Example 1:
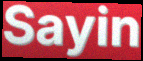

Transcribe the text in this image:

Sayin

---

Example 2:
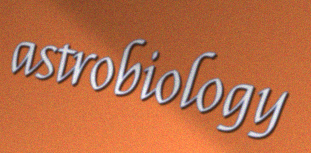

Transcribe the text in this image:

astrobiology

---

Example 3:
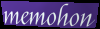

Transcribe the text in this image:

memohon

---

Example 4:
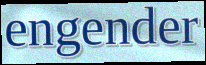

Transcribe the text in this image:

engender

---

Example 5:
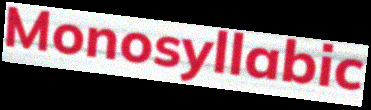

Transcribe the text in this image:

Monosyllabic